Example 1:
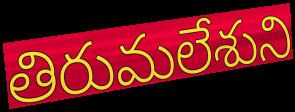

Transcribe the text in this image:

తిరుమలేశుని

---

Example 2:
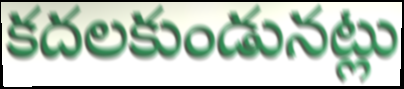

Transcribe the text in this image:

కదలకుండునట్లు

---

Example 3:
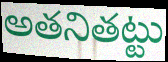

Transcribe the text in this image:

అతనితట్టు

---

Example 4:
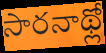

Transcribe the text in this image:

సారనాథ్లో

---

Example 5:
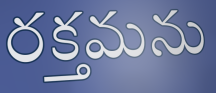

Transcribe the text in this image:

రక్తమను